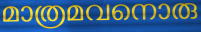
മാത്രമവനൊരു